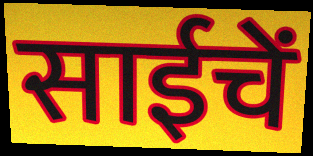
साईचें